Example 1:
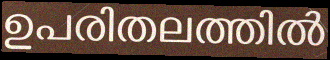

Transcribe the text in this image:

ഉപരിതലത്തിൽ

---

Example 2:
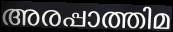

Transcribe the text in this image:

അരപ്പാത്തിമ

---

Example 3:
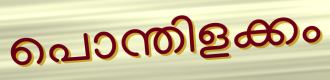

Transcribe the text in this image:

പൊന്തിളക്കം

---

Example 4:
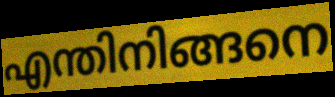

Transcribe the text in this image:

എന്തിനിങ്ങനെ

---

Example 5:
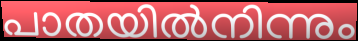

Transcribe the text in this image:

പാതയിൽനിന്നും